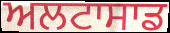
ਅਲਟਾਸਾਡ